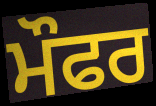
ਮੌਫਰ